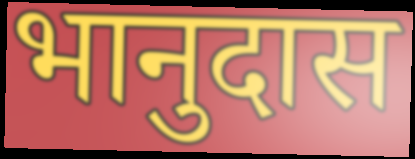
भानुदास